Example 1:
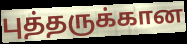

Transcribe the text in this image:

புத்தருக்கான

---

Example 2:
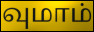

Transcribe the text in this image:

வுமாம்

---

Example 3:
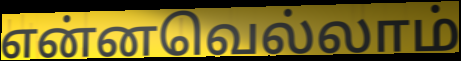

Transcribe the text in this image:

என்னவெல்லாம்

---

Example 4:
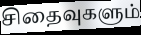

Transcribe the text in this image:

சிதைவுகளும்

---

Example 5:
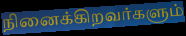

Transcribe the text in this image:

நினைக்கிறவர்களும்